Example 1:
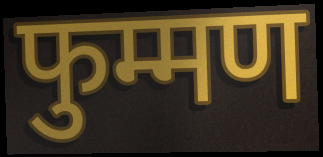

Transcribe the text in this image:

फुम्मण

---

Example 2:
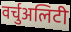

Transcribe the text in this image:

वर्चुअलिटी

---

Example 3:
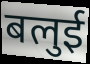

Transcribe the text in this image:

बलुई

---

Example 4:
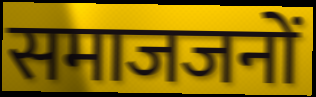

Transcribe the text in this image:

समाजजनों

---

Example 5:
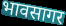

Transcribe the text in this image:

भावसागर